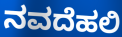
ನವದೆಹಲಿ